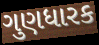
ગુણધારક